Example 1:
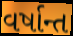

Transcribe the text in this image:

વર્ષાન્ત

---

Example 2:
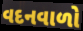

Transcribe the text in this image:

વદનવાળો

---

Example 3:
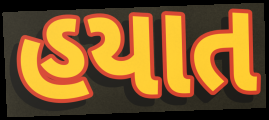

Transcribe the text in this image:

હયાત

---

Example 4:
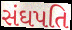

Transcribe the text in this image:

સંઘપતિ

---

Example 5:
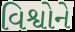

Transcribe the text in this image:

વિશ્વોને